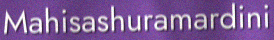
Mahisashuramardini